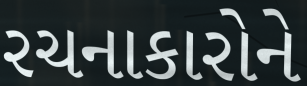
રચનાકારોને